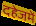
दहेजमें